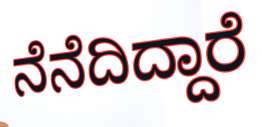
ನೆನೆದಿದ್ದಾರೆ